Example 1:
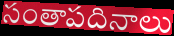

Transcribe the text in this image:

సంతాపదినాలు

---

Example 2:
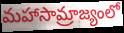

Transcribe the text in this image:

మహాసామ్రాజ్యంలో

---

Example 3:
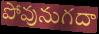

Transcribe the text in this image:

పోవునుగదా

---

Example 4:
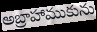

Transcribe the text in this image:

అబ్రాహాముకును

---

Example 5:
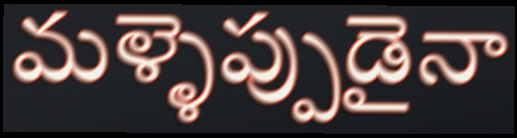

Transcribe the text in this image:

మళ్ళెప్పుడైనా